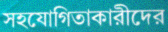
সহযোগিতাকারীদের